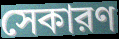
সেকারণ